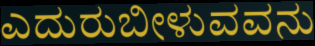
ಎದುರುಬೀಳುವವನು